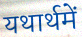
यथार्थमें